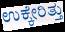
ಉಕ್ಕೇರಿತ್ತು